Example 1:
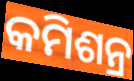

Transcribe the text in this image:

କମିଶନ୍ର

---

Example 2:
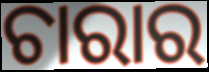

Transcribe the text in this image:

ଚାରାର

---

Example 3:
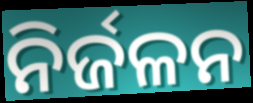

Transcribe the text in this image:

ନିର୍ଜଳନ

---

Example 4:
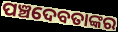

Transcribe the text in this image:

ପଞ୍ଚଦେବତାଙ୍କର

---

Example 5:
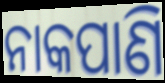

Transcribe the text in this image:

ନାକପାଣି